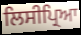
ਲਿਸੀਪ੍ਰਿਆ